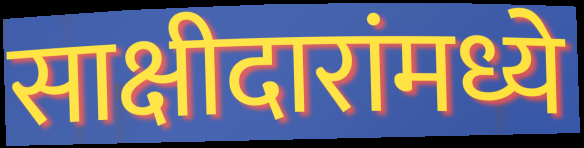
साक्षीदारांमध्ये